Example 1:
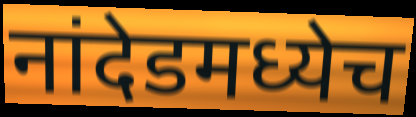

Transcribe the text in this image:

नांदेडमध्येच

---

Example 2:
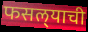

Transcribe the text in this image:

फसल्याची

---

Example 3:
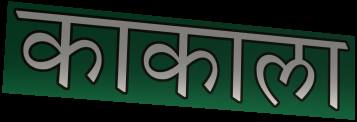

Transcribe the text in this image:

काकाला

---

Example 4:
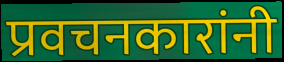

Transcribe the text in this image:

प्रवचनकारांनी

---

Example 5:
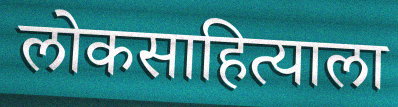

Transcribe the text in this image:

लोकसाहित्याला